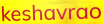
keshavrao